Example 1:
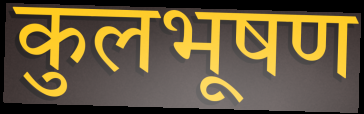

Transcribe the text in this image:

कुलभूषण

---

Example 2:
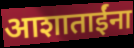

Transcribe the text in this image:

आशाताईंना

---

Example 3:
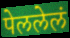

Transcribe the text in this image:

पेललेलं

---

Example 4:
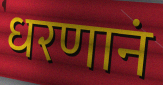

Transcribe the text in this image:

धरणानं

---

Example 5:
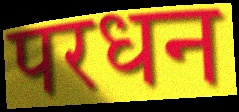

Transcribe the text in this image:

परधन